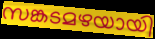
സങ്കടമഴയായി